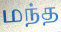
மந்த